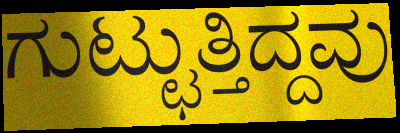
ಗುಟ್ಟುತ್ತಿದ್ದವು